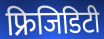
फ्रिजिडिटी